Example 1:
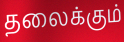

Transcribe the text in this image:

தலைக்கும்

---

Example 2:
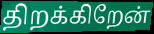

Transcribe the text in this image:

திறக்கிறேன்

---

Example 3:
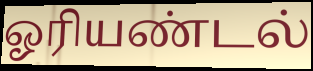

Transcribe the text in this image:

ஓரியண்டல்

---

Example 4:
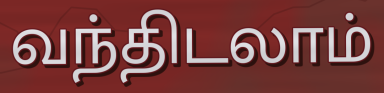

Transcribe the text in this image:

வந்திடலாம்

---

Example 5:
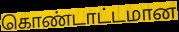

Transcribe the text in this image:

கொண்டாட்டமான